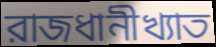
রাজধানীখ্যাত